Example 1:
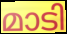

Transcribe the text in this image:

മാടി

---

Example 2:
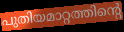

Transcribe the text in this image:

പുതിയമാറ്റത്തിന്റെ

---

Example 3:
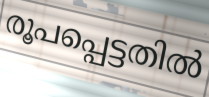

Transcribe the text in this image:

രൂപപ്പെട്ടതിൽ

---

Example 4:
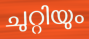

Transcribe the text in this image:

ചുറ്റിയും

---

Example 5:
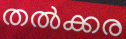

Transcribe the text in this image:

തൽക്കര